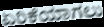
ಏರಿಕೆಯಾಗಲು